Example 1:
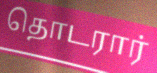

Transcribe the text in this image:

தொடரார்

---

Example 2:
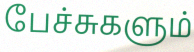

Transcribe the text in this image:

பேச்சுகளும்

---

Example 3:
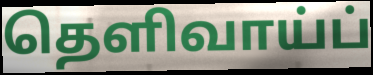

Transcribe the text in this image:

தெளிவாய்ப்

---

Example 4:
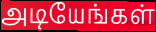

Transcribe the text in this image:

அடியேங்கள்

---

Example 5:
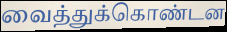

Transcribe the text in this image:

வைத்துக்கொண்டன